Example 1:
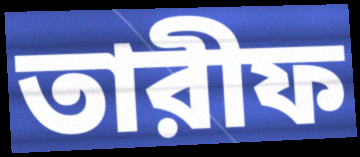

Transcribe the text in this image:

তারীফ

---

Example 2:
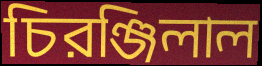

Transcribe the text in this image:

চিরঞ্জিলাল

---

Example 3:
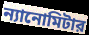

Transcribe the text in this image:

ন্যানোমিটার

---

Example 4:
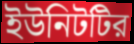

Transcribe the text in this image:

ইউনিটটির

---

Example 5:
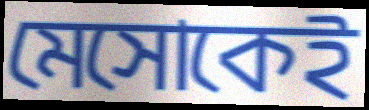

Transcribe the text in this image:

মেসোকেই